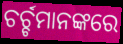
ଚର୍ଚ୍ଚମାନଙ୍କରେ